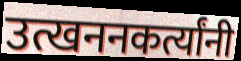
उत्खननकर्त्यांनी